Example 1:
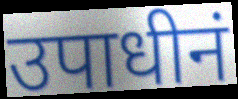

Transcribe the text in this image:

उपाधीनं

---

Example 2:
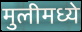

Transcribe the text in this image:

मुलीमध्ये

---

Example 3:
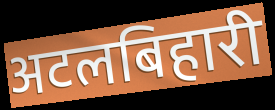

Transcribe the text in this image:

अटलबिहारी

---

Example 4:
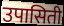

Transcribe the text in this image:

उपासिती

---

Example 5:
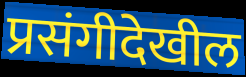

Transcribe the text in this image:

प्रसंगीदेखील